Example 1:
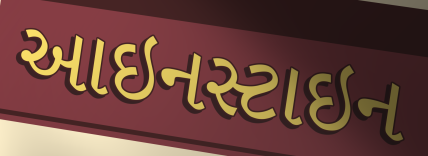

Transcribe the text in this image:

આઇનસ્ટાઇન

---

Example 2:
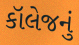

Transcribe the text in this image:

કૉલેજનું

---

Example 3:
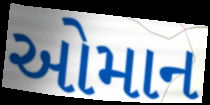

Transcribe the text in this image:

ઓમાન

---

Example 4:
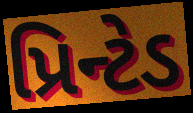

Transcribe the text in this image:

પ્રિન્ટેડ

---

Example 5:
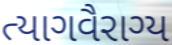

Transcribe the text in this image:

ત્યાગવૈરાગ્ય